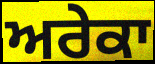
ਅਰੇਕਾ